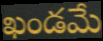
ఖండమే